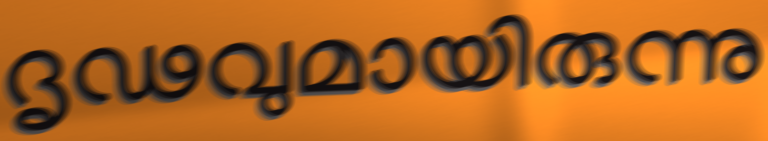
ദൃഢവുമായിരുന്നു